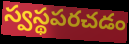
స్వస్థపరచడం